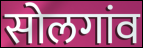
सोलगांव